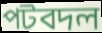
পটবদল